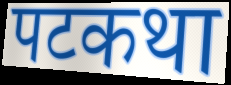
पटकथा